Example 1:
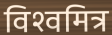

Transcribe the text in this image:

विश्वमित्र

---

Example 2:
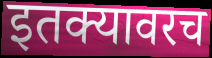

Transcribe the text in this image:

इतक्यावरच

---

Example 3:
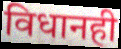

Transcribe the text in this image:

विधानही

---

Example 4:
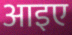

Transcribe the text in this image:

आइए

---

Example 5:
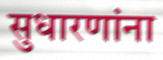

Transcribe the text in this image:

सुधारणांना